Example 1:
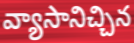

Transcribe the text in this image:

వ్యాసానిచ్చిన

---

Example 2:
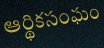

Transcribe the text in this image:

ఆర్థికసంఘం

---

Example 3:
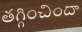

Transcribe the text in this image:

తగ్గించిందా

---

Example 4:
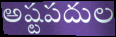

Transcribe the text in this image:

అష్టపదుల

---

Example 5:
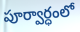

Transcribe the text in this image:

పూర్వార్ధంలో